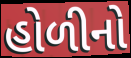
હોળીનો